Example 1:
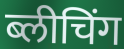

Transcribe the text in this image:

ब्लीचिंग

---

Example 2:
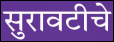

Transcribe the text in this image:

सुरावटीचे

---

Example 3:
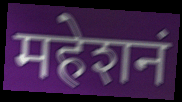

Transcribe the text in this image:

महेशनं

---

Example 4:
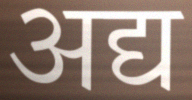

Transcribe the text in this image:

अद्य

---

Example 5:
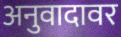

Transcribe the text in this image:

अनुवादावर